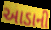
આડાની